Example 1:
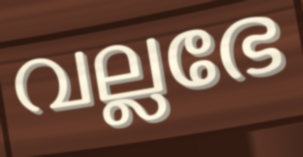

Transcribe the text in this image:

വല്ലഭേ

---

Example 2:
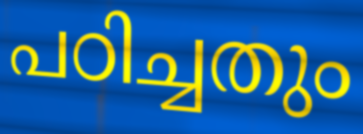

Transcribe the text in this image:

പഠിച്ചതും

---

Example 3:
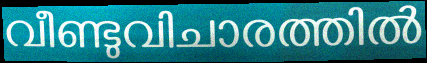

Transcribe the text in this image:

വീണ്ടുവിചാരത്തിൽ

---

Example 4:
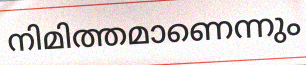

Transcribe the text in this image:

നിമിത്തമാണെന്നും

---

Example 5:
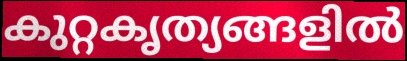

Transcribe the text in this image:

കുറ്റകൃത്യങ്ങളിൽ